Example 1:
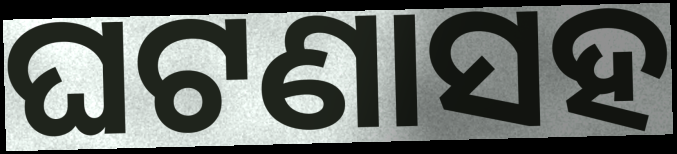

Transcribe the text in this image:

ଘଟଣାସହ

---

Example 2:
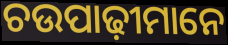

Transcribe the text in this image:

ଚଉପାଢ଼ୀମାନେ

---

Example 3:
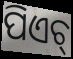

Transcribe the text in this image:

ପିଏଚ୍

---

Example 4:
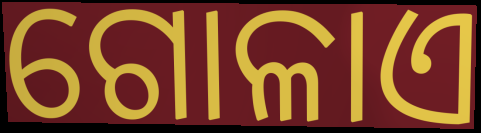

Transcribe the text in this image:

ଗୋଳାଏ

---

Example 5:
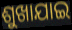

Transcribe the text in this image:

ଶୁଖାଯାଇ